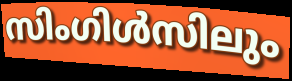
സിംഗിൾസിലും